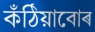
কঁঠিয়াবোৰ